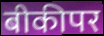
बीकीपर